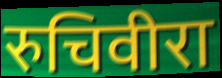
रुचिवीरा